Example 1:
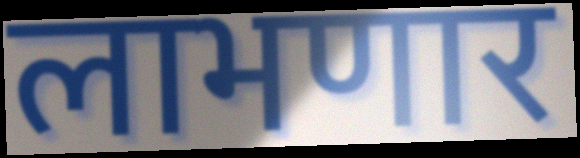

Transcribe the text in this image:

लाभणार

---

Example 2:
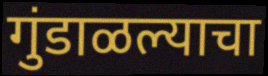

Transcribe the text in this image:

गुंडाळल्याचा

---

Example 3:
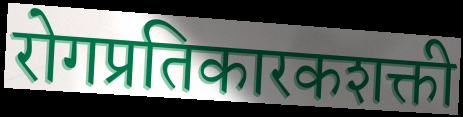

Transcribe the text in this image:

रोगप्रतिकारकशक्ती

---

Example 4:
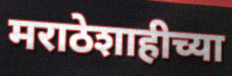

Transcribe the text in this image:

मराठेशाहीच्या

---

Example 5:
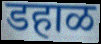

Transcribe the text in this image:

डहाळ